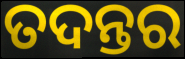
ତଦନ୍ତର